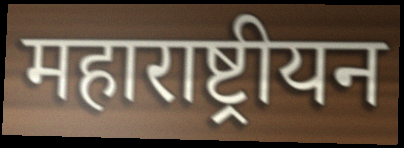
महाराष्ट्रीयन